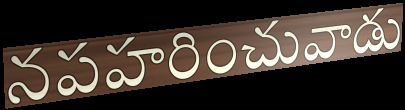
నపహరించువాడు